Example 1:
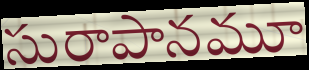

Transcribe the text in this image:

సురాపానమూ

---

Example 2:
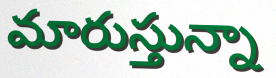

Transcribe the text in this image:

మారుస్తున్నా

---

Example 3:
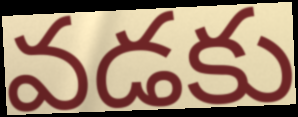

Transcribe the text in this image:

వడకు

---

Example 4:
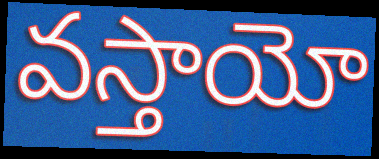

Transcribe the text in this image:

వస్తాయో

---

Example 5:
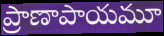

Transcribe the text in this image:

ప్రాణాపాయమూ